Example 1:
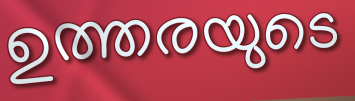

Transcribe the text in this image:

ഉത്തരയുടെ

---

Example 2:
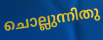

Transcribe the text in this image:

ചൊല്ലുന്നിതു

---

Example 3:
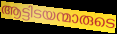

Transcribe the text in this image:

ആട്ടിടയന്മാരുടെ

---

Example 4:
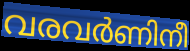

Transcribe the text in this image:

വരവർണിനീ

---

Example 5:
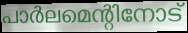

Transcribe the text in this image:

പാർലമെന്റിനോട്